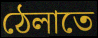
ঠেলাতে